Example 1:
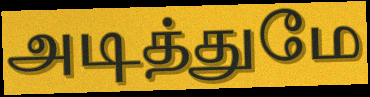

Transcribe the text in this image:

அடித்துமே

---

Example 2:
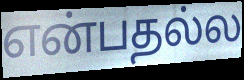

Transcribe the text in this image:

என்பதல்ல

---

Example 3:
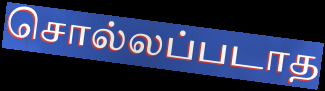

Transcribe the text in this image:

சொல்லப்படாத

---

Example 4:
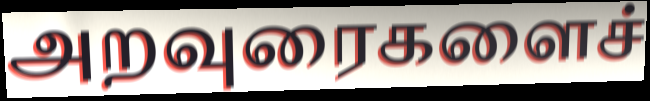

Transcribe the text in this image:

அறவுரைகளைச்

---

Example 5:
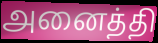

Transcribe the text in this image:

அனைத்தி